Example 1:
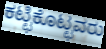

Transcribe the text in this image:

ಕಟ್ಟಿಕೊಟ್ಟವರು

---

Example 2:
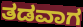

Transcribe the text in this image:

ತಡವಾಗ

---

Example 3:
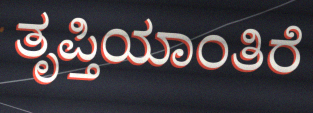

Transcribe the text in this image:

ತೃಪ್ತಿಯಾಂತಿರೆ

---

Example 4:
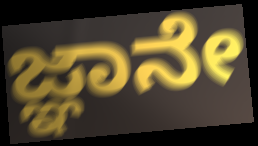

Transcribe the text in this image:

ಜ್ಞಾನೇ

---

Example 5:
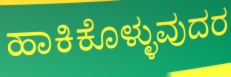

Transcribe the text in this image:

ಹಾಕಿಕೊಳ್ಳುವುದರ